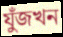
যুঁজখন